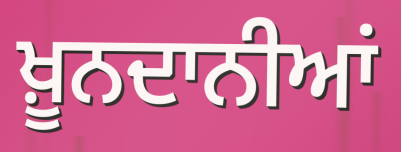
ਖ਼ੂਨਦਾਨੀਆਂ